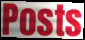
Posts